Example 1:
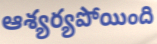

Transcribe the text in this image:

ఆశ్యర్యపోయింది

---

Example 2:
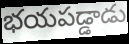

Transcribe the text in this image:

భయపడ్డాడు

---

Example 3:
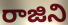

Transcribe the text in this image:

రాజిని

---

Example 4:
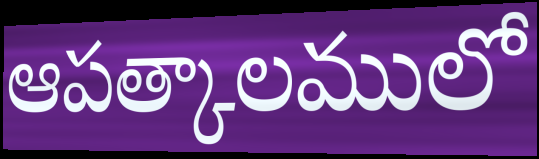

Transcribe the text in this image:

ఆపత్కాలములో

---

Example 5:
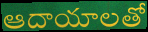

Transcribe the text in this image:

ఆదాయాలతో